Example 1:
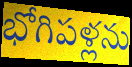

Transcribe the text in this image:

భోగిపళ్లను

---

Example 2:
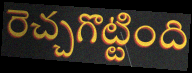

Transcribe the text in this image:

రెచ్చగొట్టింది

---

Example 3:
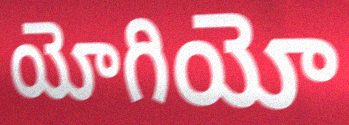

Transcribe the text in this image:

యోగియో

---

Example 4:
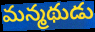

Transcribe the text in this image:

మన్మథుడు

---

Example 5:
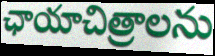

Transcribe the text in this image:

ఛాయాచిత్రాలను